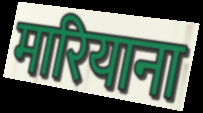
मारियाना